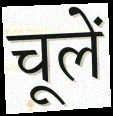
चूलें